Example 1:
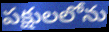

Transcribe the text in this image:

పక్షులలోను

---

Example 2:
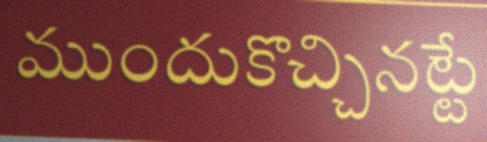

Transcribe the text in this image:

ముందుకొచ్చినట్టే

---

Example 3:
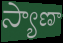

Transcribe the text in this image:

స్యాణా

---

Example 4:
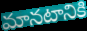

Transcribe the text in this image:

మానటానికి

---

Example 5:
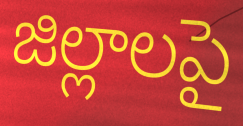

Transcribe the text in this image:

జిల్లాలపై